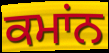
ਕਮਾਂਨ